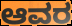
ಆವರ